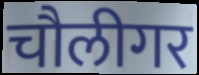
चौलीगर